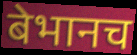
बेभानच